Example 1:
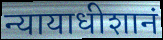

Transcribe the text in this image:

न्यायाधीशानं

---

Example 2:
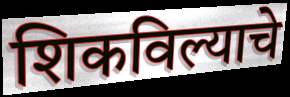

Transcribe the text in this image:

शिकविल्याचे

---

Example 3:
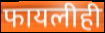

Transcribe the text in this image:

फायलीही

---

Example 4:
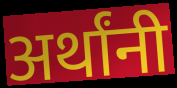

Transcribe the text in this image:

अर्थांनी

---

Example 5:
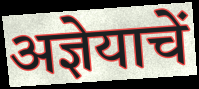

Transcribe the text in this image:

अज्ञेयाचें